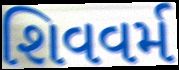
શિવવર્મ